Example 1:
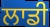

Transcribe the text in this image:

ਲਾਡੀ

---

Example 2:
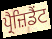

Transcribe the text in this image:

ਪ੍ਰੈਜ਼ਿਡੈਂਟ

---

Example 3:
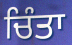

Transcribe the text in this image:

ਚਿੰਤਾ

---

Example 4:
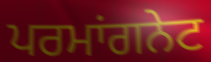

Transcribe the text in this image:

ਪਰਮਾਂਗਨੇਟ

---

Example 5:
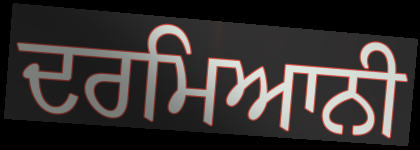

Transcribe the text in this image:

ਦਰਮਿਆਨੀ